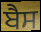
ਬੈਸ